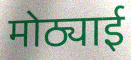
मोठ्याई